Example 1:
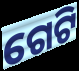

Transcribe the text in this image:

ଗେଟି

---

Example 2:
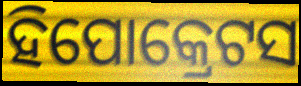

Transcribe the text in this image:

ହିପୋକ୍ରେଟସ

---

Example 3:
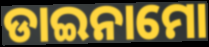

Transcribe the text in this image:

ଡାଇନାମୋ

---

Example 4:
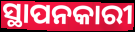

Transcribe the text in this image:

ସ୍ଥାପନକାରୀ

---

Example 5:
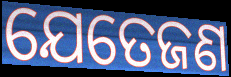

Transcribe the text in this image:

ଯେତେଜଣ